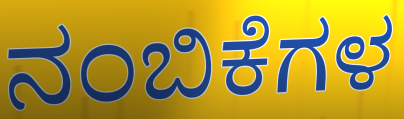
ನಂಬಿಕೆಗಳ